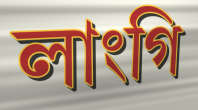
লাংগি